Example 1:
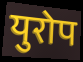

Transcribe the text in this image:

युरोप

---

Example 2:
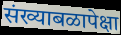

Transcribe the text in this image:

संख्याबळापेक्षा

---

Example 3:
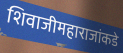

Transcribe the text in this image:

शिवाजीमहाराजांकडे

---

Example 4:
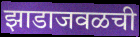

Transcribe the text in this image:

झाडाजवळची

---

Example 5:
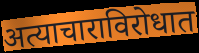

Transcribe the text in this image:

अत्याचाराविरोधात